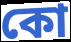
কো